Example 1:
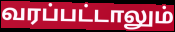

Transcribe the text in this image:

வரப்பட்டாலும்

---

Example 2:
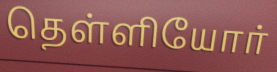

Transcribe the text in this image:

தெள்ளியோர்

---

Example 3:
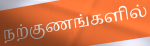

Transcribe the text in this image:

நற்குணங்களில்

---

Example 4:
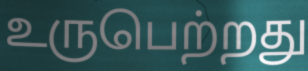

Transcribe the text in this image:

உருபெற்றது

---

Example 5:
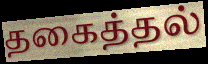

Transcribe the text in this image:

தகைத்தல்